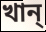
খান্